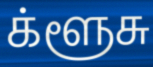
க்ளூசு